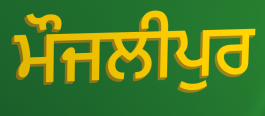
ਮੌਜਲੀਪੁਰ